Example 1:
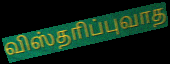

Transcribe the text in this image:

விஸ்தரிப்புவாத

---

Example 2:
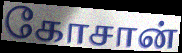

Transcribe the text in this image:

கோசான்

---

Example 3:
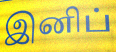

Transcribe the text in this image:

இனிப்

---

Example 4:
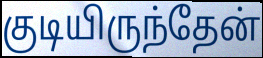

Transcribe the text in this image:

குடியிருந்தேன்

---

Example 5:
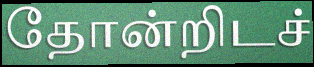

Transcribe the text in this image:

தோன்றிடச்